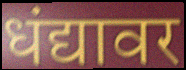
धंद्यावर